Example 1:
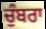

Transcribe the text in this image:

ਚੁੰਬਰਾ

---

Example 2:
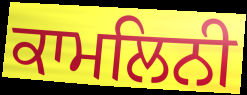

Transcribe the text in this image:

ਕਾਮਲਿਨੀ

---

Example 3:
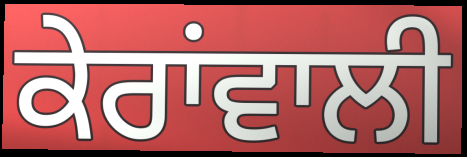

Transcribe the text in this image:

ਕੇਰਾਂਵਾਲੀ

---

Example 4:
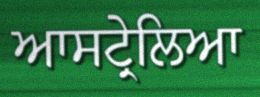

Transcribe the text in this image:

ਆਸਟ੍ਰੇਲਿਆ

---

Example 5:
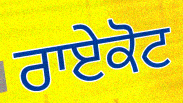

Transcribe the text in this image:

ਰਾਏਕੋਟ